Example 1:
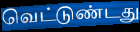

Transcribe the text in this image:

வெட்டுண்டது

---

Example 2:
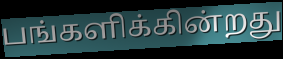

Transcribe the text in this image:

பங்களிக்கின்றது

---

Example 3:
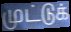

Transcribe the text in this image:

முட்டுக்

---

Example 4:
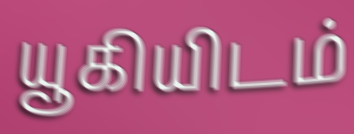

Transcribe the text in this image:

யூகியிடம்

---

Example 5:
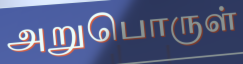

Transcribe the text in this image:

அறுபொருள்